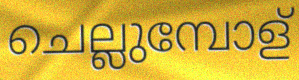
ചെല്ലുമ്പോള്